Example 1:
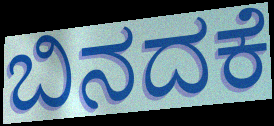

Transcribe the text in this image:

ಬಿನದಕೆ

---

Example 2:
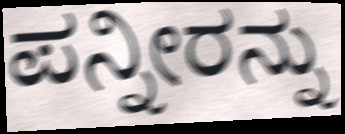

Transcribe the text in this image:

ಪನ್ನೀರನ್ನು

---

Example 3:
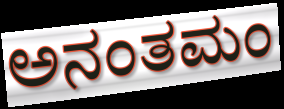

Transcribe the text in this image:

ಅನಂತಮಂ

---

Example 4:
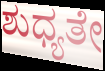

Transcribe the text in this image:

ಶುಧ್ಯತೇ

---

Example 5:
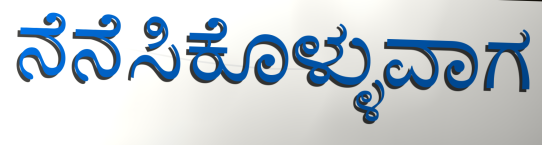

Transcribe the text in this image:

ನೆನೆಸಿಕೊಳ್ಳುವಾಗ